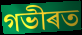
গভীৰত